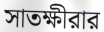
সাতক্ষীরার